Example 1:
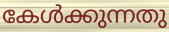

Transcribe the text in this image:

കേൾക്കുന്നതു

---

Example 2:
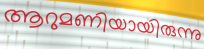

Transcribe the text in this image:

ആറുമണിയായിരുന്നു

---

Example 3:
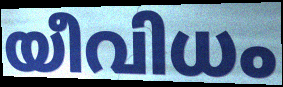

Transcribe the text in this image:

യീവിധം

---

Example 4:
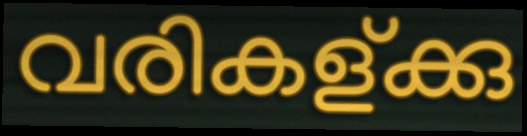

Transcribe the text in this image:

വരികള്ക്കു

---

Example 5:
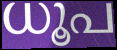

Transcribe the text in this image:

ധൂപ